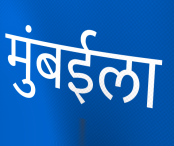
मुंबईला